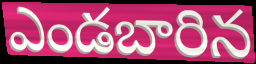
ఎండబారిన